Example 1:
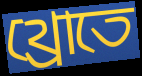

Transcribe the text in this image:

থ্রোতে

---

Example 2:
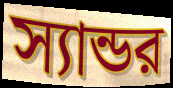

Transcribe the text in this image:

স্যান্ডর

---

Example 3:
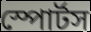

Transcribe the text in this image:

স্পোর্টস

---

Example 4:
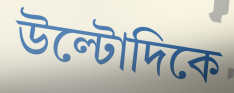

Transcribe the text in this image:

উল্টোদিকে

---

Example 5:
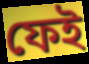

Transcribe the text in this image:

ফেই